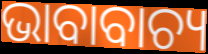
ଭାବାବାଚ୍ୟ